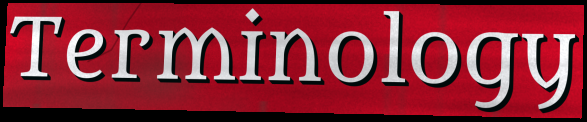
Terminology